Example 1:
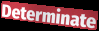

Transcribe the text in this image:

Determinate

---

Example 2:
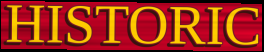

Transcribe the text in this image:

HISTORIC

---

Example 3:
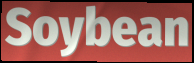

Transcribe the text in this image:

Soybean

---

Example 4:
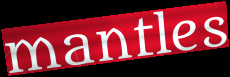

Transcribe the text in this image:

mantles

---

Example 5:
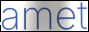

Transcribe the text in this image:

amet